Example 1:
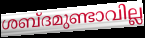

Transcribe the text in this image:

ശബ്ദമുണ്ടാവില്ല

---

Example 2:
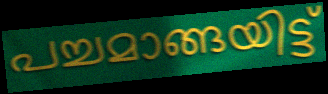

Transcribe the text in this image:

പച്ചമാങ്ങയിട്ട്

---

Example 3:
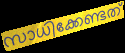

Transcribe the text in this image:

സാധിക്കേണ്ടത്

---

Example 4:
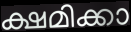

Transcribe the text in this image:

ക്ഷമിക്കാ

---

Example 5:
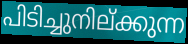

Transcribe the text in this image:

പിടിച്ചുനില്ക്കുന്ന